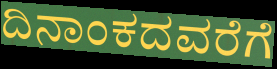
ದಿನಾಂಕದವರೆಗೆ